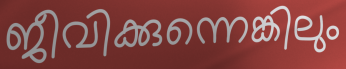
ജീവിക്കുന്നെങ്കിലും